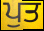
ਪੁਤ